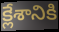
క్లేశానికి